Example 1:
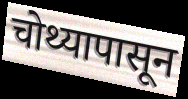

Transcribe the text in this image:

चोथ्यापासून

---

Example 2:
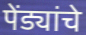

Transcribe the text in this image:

पेंड्यांचे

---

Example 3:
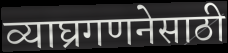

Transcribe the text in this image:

व्याघ्रगणनेसाठी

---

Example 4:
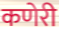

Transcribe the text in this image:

कणेरी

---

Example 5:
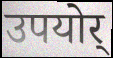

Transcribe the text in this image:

उपयोर्